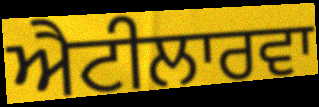
ਐਟੀਲਾਰਵਾ